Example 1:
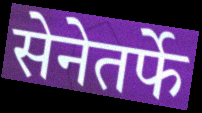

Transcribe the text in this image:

सेनेतर्फे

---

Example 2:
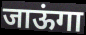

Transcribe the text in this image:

जाऊंगा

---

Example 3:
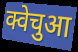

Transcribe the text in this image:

क्वेचुआ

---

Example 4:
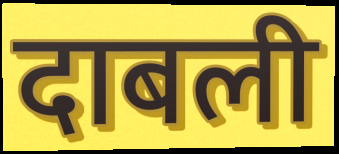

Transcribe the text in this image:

दाबली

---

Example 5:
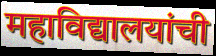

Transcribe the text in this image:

महाविद्यालयांची